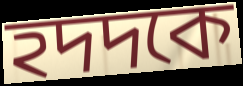
হদদকে